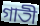
গাতী